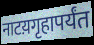
नाटय़गृहापर्यंत